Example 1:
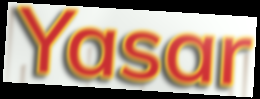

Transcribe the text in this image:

Yasar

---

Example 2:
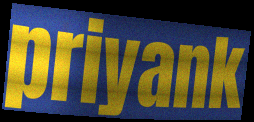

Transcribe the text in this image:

priyank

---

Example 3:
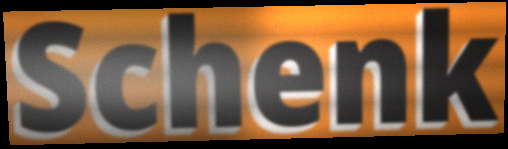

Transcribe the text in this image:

Schenk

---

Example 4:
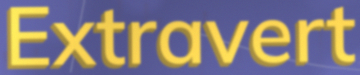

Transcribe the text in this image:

Extravert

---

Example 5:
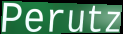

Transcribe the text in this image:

Perutz